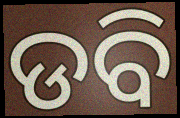
ଡବି